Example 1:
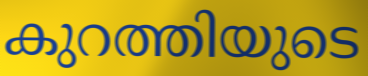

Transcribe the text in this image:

കുറത്തിയുടെ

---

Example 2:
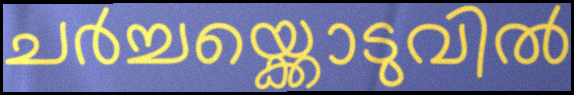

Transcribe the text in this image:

ചർച്ചയ്ക്കൊടുവിൽ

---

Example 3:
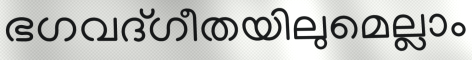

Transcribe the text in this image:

ഭഗവദ്ഗീതയിലുമെല്ലാം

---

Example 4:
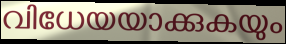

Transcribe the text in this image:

വിധേയയാക്കുകയും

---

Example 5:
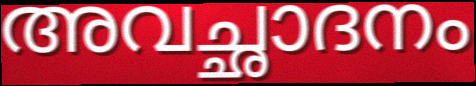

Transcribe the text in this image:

അവച്ഛാദനം